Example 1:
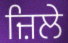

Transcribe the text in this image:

ਜ਼ਿਲੇ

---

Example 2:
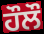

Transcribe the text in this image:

ਹੌਲੌ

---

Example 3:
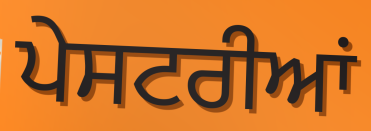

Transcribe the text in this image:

ਪੇਸਟਰੀਆਂ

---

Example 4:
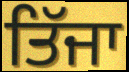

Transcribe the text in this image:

ਤਿੱਜਾ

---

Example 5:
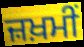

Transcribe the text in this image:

ਜ਼ਖ਼ਮੀਂ